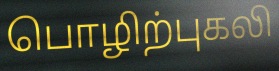
பொழிற்புகலி